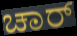
ಚಾರ್